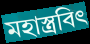
মহাস্ত্রবিৎ